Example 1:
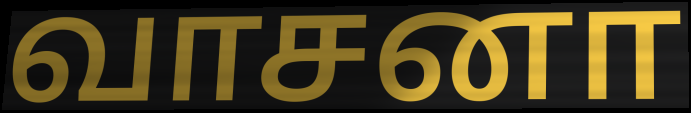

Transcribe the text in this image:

வாசனா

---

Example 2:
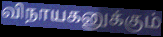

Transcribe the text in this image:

விநாயகனுக்கும்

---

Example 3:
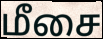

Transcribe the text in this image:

மீசை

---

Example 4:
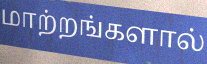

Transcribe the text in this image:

மாற்றங்களால்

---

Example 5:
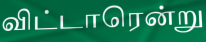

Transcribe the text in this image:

விட்டாரென்று